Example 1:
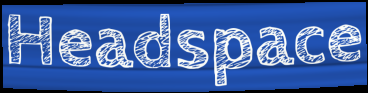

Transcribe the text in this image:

Headspace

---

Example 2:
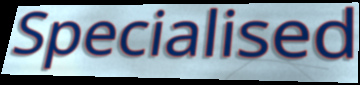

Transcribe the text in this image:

Specialised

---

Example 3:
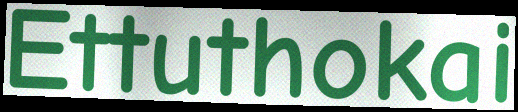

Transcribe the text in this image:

Ettuthokai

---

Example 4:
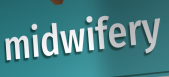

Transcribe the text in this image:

midwifery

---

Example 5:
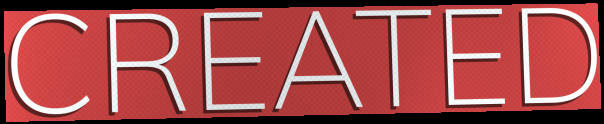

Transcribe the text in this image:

CREATED